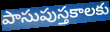
పాసుపుస్తకాలకు